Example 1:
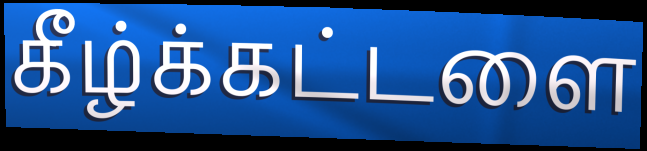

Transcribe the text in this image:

கீழ்க்கட்டளை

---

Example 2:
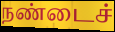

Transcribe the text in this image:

நண்டைச்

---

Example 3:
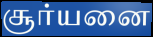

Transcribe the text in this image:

சூர்யனை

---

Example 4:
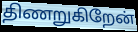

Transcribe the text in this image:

திணறுகிறேன்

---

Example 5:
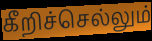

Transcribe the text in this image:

கீறிச்செல்லும்